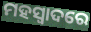
ମହସ୍ୱାଦରେ